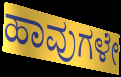
ಹಾವುಗಳೇ